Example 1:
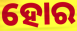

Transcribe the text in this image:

ହୋର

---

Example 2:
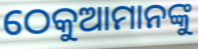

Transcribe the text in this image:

ଠେକୁଆମାନଙ୍କୁ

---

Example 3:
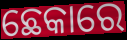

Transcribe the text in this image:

ଛେକାରେ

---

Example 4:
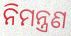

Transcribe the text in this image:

ନିମନ୍ତ୍ରଣ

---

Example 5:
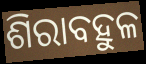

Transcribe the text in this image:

ଶିରାବହୁଳ